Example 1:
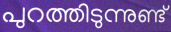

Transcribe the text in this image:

പുറത്തിടുന്നുണ്ട്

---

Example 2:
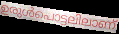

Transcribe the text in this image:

ഉരുൾപൊട്ടലിലാണ്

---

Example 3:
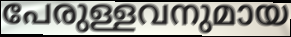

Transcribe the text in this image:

പേരുള്ളവനുമായ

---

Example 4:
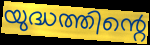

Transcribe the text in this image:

യുദ്ധത്തിന്റെ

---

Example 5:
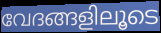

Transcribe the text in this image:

വേദങ്ങളിലൂടെ